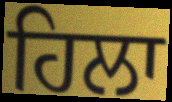
ਹਿਲਾ